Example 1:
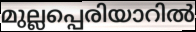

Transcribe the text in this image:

മുല്ലപ്പെരിയാറിൽ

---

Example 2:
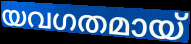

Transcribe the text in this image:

യവഗതമായ്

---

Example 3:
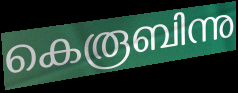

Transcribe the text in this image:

കെരൂബിന്നു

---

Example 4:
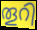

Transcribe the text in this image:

തൂറി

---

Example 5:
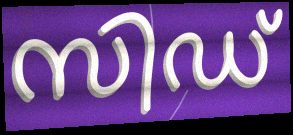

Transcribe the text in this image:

സിഡ്